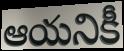
ఆయనికీ